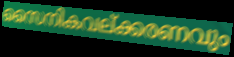
സൈനികവല്ക്കരണവും